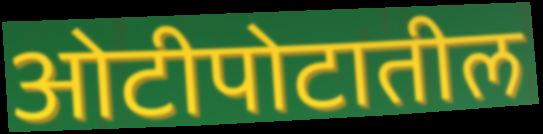
ओटीपोटातील